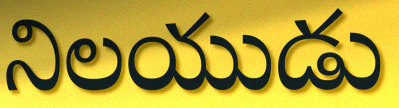
నిలయుడు